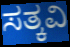
ಸತ್ಕವಿ